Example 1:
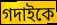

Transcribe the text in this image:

গদাইকে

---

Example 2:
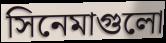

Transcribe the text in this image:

সিনেমাগুলো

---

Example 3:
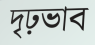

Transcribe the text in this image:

দৃঢ়ভাব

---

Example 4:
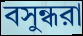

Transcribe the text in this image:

বসুন্ধরা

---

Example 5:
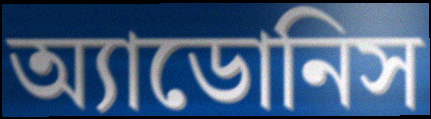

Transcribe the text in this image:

অ্যাডোনিস